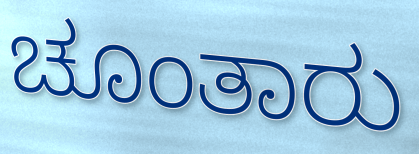
ಚೂಂತಾರು